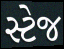
સ્ટેજ